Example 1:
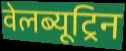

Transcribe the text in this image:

वेलब्यूट्रिन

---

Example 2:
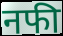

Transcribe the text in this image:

नफी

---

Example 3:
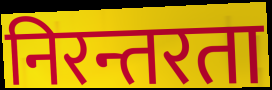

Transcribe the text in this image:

निरन्तरता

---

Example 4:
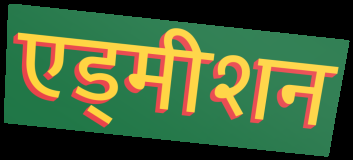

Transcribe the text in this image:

एड्मीशन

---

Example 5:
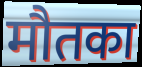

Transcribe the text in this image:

मौतका